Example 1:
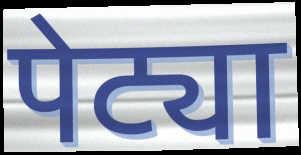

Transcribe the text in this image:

पेट्या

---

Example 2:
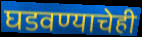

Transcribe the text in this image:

घडवण्याचेही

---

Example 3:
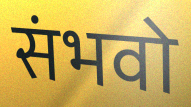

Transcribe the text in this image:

संभवो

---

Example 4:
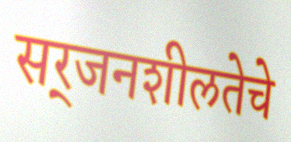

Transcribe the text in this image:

सर्जनशीलतेचे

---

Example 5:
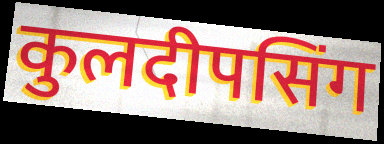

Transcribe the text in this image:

कुलदीपसिंग